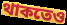
থাকতেও